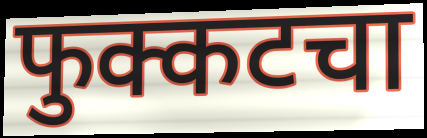
फुक्कटचा